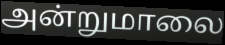
அன்றுமாலை